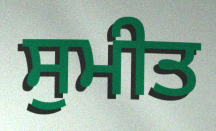
ਸੁਮੀਤ